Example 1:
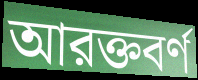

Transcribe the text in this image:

আরক্তবর্ণ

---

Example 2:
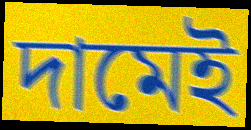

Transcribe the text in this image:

দামেই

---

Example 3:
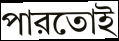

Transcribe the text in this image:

পারতোই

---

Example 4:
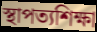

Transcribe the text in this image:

স্থাপত্যশিক্ষা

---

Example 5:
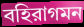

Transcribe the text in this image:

বহিরাগমন